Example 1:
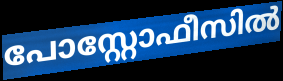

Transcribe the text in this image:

പോസ്റ്റോഫീസിൽ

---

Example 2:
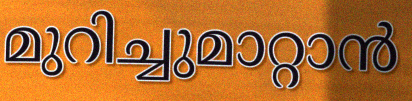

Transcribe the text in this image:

മുറിച്ചുമാറ്റാൻ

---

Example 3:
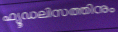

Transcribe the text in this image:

ഫ്യൂഡലിസത്തിനും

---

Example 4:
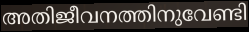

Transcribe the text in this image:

അതിജീവനത്തിനുവേണ്ടി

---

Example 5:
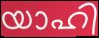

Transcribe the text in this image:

യാഹി